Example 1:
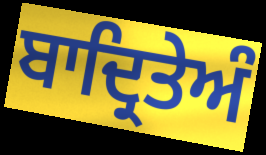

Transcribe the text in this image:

ਬਾਦ੍ਰਿਤੇਅੰ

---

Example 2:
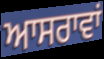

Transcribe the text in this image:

ਆਸਰਾਵਾਂ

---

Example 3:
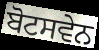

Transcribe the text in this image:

ਬੋਟਸਵੇਨ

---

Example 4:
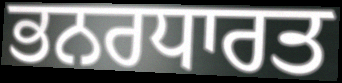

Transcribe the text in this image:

ਭਨਰਧਾਰਤ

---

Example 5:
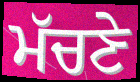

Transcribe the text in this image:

ਮੱਚਣੇ